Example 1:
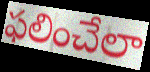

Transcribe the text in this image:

ఫలించేలా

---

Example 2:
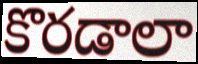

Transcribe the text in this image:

కొరడాలా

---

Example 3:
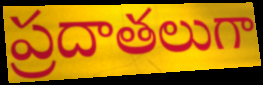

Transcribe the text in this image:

ప్రదాతలుగా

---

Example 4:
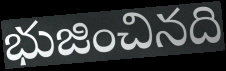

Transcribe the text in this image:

భుజించినది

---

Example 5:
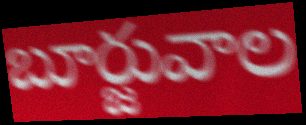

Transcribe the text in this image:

బూర్జువాల